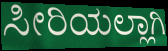
ಸೀರಿಯಲ್ಲಾಗಿ